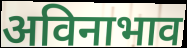
अविनाभाव